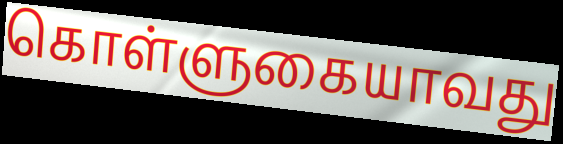
கொள்ளுகையாவது